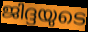
ജിദ്ദയുടെ